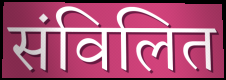
संविलित